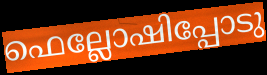
ഫെല്ലോഷിപ്പോടു